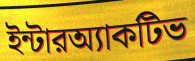
ইন্টারঅ্যাকটিভ